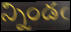
న్నిండఁ